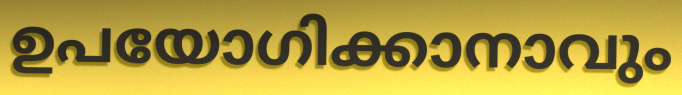
ഉപയോഗിക്കാനാവും